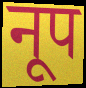
नूप